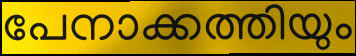
പേനാക്കത്തിയും